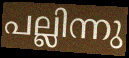
പല്ലിന്നു